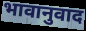
भावानुवाद